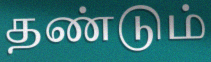
தண்டும்